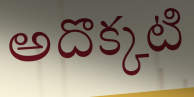
అదొక్కటి